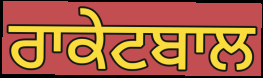
ਰਾਕੇਟਬਾਲ